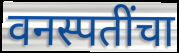
वनस्पतींचा